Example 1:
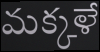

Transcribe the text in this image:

మక్కళే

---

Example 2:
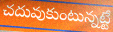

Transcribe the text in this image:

చదువుకుంటున్నట్టే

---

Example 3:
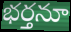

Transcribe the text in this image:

భర్తనూ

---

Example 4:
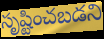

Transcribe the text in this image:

సృష్టించబడని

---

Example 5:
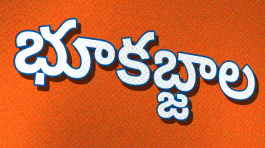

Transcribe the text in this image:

భూకబ్జాల